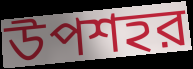
উপশহর